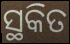
ସ୍ଥକିତ